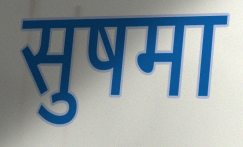
सुषमा